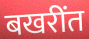
बखरींत